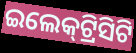
ଇଲେକ୍‌ଟ୍ରିସିଟି